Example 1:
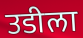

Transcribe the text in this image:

उडीला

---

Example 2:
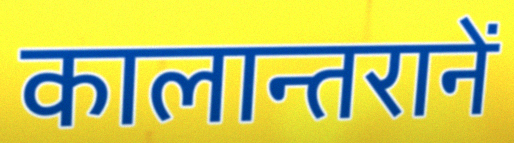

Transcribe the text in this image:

कालान्तरानें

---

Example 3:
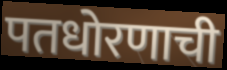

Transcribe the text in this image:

पतधोरणाची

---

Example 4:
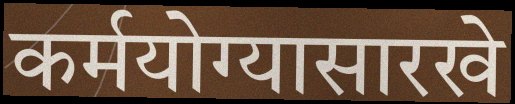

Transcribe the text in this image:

कर्मयोग्यासारखे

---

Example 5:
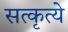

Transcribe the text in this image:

सत्कृत्ये